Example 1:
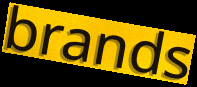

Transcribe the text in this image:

brands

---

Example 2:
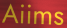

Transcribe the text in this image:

Aiims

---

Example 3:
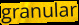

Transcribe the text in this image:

granular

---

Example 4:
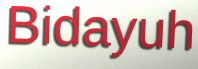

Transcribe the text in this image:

Bidayuh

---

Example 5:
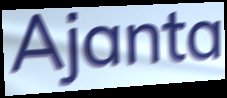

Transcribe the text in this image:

Ajanta